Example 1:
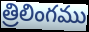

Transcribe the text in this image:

త్రిలింగము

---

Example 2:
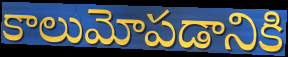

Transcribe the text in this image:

కాలుమోపడానికి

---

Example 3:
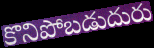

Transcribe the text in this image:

కొనిపోబడుదురు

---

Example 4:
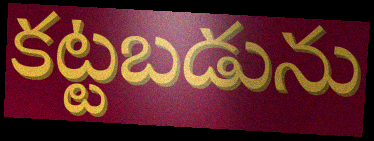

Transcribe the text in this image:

కట్టబడును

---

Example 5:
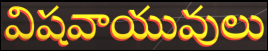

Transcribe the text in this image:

విషవాయువులు